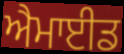
ਐਮਾਈਡ